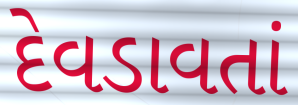
દેવડાવતાં